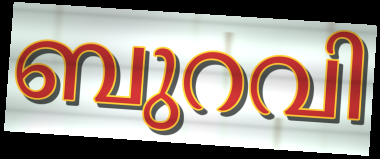
ബുറവി